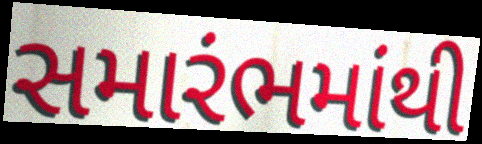
સમારંભમાંથી